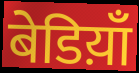
बेडिय़ाँ